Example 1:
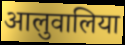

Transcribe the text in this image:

आलुवालिया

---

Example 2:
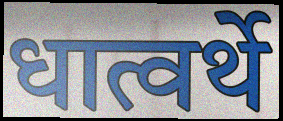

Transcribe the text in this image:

धात्वर्थे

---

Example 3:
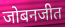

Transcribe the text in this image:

जोबनजीत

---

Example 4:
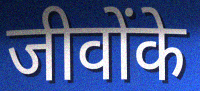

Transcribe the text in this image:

जीवोंके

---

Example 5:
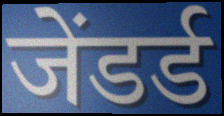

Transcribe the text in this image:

जेंडर्ड